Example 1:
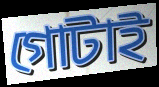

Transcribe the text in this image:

গোটাই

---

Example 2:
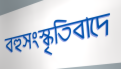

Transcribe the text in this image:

বহুসংস্কৃতিবাদে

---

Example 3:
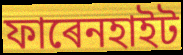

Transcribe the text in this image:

ফাৰেনহাইট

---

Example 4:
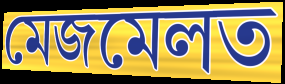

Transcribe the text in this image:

মেজমেলত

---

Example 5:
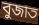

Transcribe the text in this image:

বুজাত